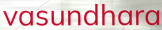
vasundhara